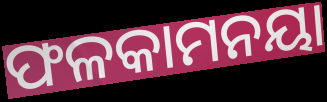
ଫଳକାମନୟା